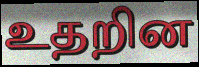
உதறின